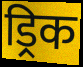
ड्रिक